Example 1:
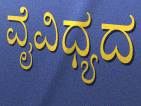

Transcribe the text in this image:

ವೈವಿಧ್ಯದ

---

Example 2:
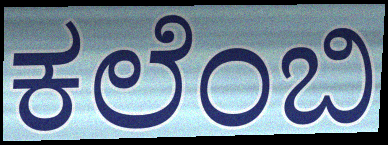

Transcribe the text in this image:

ಕಲೆಂಬಿ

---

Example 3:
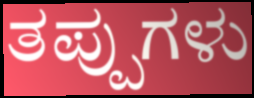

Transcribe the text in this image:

ತಪ್ಪುಗಳು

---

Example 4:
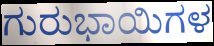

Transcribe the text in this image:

ಗುರುಭಾಯಿಗಳ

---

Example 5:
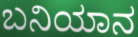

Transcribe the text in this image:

ಬನಿಯಾನ